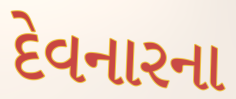
દેવનારના